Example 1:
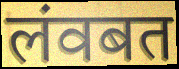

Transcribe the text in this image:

लंवबत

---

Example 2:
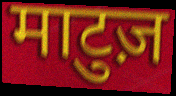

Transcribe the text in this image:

माटुज़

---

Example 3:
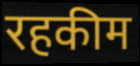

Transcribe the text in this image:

रहकीम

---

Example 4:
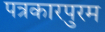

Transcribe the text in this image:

पत्रकारपुरम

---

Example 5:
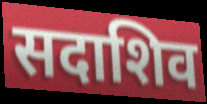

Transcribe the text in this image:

सदाशिव